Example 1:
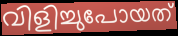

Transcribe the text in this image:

വിളിച്ചുപോയത്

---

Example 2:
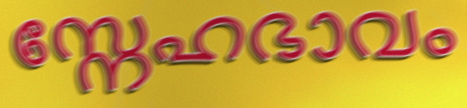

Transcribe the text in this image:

സ്നേഹഭാവം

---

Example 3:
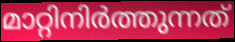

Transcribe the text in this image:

മാറ്റിനിർത്തുന്നത്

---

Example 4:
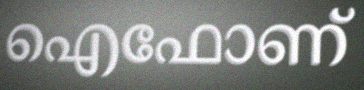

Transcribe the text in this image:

ഐഫോണ്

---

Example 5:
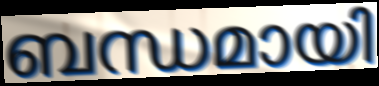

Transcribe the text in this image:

ബന്ധമായി